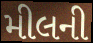
મીલની